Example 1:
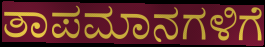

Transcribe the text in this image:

ತಾಪಮಾನಗಳಿಗೆ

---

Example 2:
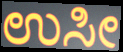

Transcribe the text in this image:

ಉಸೀ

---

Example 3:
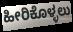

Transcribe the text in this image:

ಹೀರಿಕೊಳ್ಳಲು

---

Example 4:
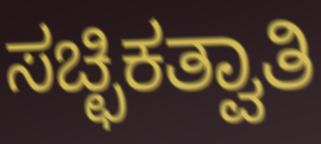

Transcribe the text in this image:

ಸಚ್ಛಿಕತ್ವಾತಿ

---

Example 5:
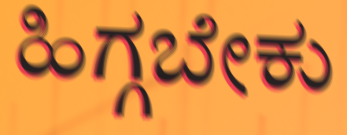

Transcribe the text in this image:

ಹಿಗ್ಗಬೇಕು